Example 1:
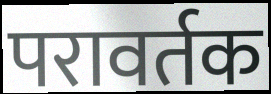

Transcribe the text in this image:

परावर्तक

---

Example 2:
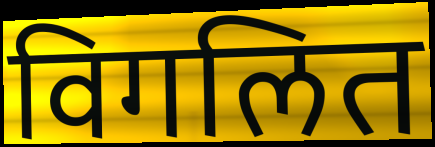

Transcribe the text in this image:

विगलित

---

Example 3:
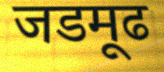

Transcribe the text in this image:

जडमूढ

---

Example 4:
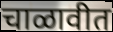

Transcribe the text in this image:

चाळावीत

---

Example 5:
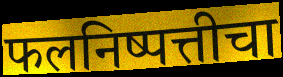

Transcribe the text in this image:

फलनिष्पत्तीचा